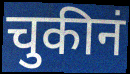
चुकीनं